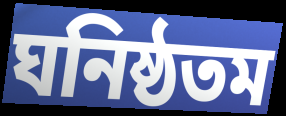
ঘনিষ্ঠতম